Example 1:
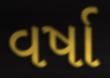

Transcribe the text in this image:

વર્ષા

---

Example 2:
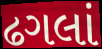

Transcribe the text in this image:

ઢગલાં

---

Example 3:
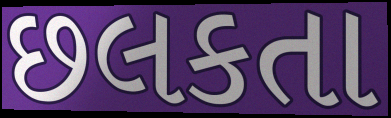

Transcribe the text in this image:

છલકતા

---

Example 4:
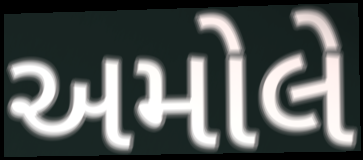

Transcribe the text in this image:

અમોલે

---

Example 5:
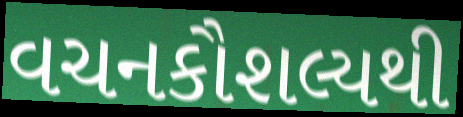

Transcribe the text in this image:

વચનકૌશલ્યથી